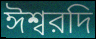
ঈশ্বরদি